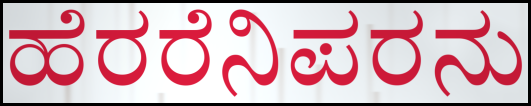
ಹೆರರೆನಿಪರನು